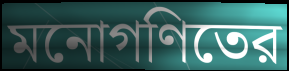
মনোগণিতের